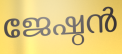
ജേഷ്ഠൻ